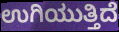
ಉಗಿಯುತ್ತಿದೆ